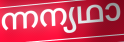
ന്നന്യഥാ